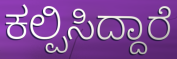
ಕಲ್ಪಿಸಿದ್ದಾರೆ